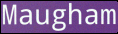
Maugham